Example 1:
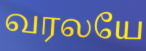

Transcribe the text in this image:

வரலயே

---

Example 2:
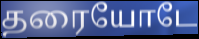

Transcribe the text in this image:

தரையோடே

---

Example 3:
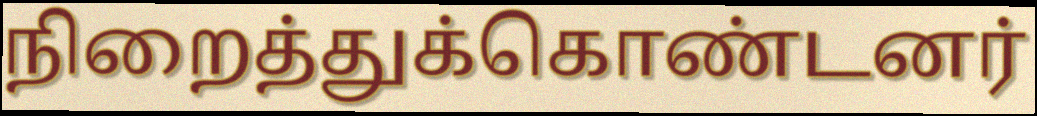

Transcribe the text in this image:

நிறைத்துக்கொண்டனர்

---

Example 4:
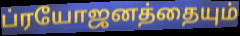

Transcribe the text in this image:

ப்ரயோஜனத்தையும்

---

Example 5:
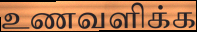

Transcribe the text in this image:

உணவளிக்க